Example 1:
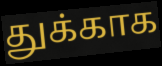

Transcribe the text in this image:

துக்காக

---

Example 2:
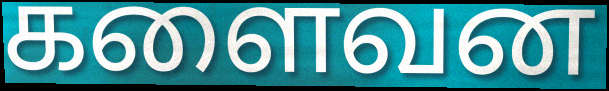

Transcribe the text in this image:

களைவன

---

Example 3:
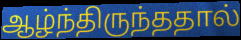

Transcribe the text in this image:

ஆழ்ந்திருந்ததால்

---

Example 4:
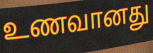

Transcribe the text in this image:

உணவானது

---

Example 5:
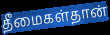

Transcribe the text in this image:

தீமைகள்தான்